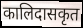
कालिदासकृत